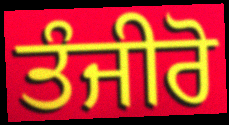
ਤੰਜੀਰੋ